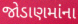
જોડાણમાંના